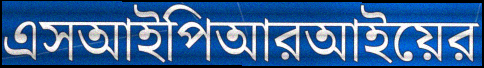
এসআইপিআরআইয়ের